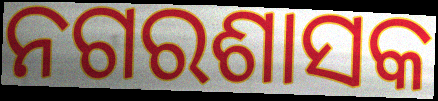
ନଗରଶାସକ